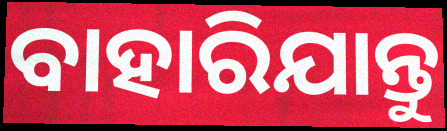
ବାହାରିଯାନ୍ତୁ